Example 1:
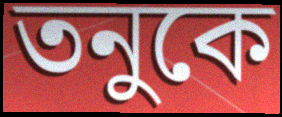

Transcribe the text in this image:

তনুকে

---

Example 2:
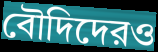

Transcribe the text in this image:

বৌদিদেরও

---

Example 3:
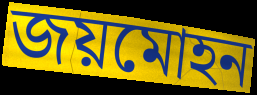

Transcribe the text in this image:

জয়মোহন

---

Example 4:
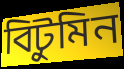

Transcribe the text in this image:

বিটুমিন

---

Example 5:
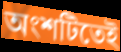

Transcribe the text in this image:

অংশটিতেই